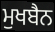
ਮੁਖਬੈਨ